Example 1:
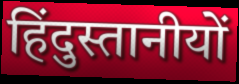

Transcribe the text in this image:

हिंदुस्तानीयों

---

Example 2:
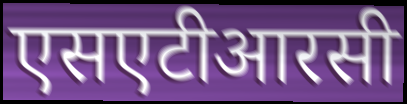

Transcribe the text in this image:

एसएटीआरसी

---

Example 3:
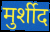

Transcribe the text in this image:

मुर्शीद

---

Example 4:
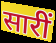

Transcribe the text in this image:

सारीं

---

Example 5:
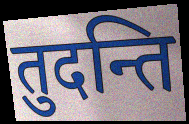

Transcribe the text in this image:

तुदन्ति